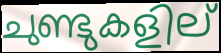
ചുണ്ടുകളില്